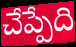
చేప్పేది